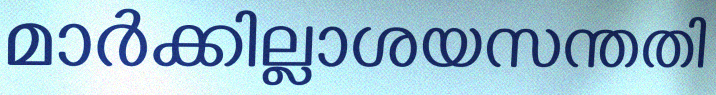
മാർക്കില്ലാശയസന്തതി